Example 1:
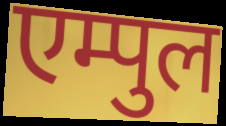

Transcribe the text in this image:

एम्पुल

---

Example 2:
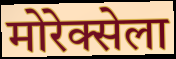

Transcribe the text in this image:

मोरेक्सेला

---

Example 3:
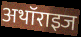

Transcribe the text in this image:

अथॉराइज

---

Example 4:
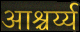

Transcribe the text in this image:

आश्चर्य्य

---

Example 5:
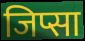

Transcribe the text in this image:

जिप्सा